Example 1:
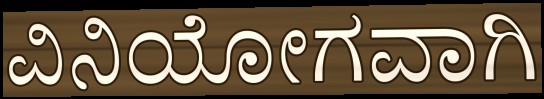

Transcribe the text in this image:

ವಿನಿಯೋಗವಾಗಿ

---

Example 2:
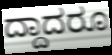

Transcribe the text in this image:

ದ್ದಾದರೂ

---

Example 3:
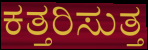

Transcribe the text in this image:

ಕತ್ತರಿಸುತ್ತ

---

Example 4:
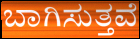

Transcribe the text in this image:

ಬಾಗಿಸುತ್ತವೆ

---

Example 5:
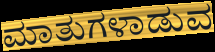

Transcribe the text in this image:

ಮಾತುಗಳಾಡುವ